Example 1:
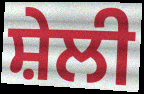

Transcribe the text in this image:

ਸ਼ੇਲੀ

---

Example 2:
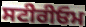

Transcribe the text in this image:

ਸਟੀਰੀਓਮ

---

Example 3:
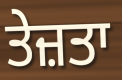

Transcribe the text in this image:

ਤੇਜ਼ਤਾ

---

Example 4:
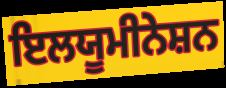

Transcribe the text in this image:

ਇਲਯੂਮੀਨੇਸ਼ਨ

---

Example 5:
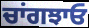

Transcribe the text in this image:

ਚਾਂਗਝਾਓ